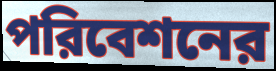
পরিবেশনের